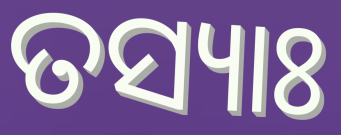
ତସ୍ୟାଃ